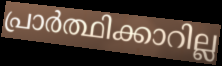
പ്രാർത്ഥിക്കാറില്ല